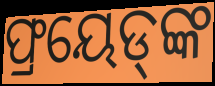
ଫ୍ରୟେଡ୍‍ଙ୍କ